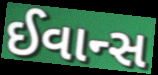
ઈવાન્સ